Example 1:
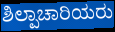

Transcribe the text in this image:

ಶಿಲ್ಪಾಚಾರಿಯರು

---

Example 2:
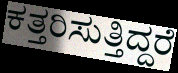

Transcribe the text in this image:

ಕತ್ತರಿಸುತ್ತಿದ್ದರೆ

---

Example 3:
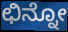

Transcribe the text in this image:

ಛಿನ್ನೋ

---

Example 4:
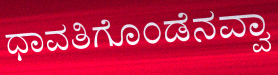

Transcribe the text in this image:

ಧಾವತಿಗೊಂಡೆನವ್ವಾ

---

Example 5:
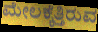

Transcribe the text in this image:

ಮೇಲಕ್ಕೆತ್ತಿರುವ